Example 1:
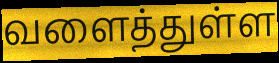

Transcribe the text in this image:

வளைத்துள்ள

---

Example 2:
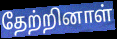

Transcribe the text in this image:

தேற்றினாள்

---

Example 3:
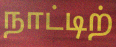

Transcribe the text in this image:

நாட்டிற்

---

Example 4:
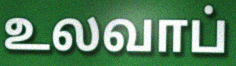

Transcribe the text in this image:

உலவாப்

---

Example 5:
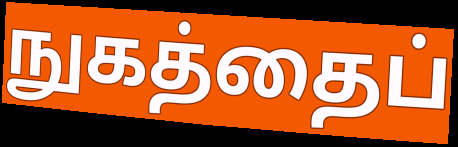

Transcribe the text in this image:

நுகத்தைப்